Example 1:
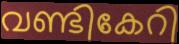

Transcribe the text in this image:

വണ്ടികേറി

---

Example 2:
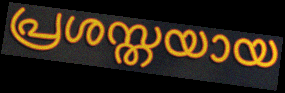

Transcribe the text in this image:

പ്രശസ്തയായ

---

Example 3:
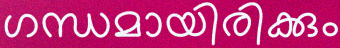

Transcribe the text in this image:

ഗന്ധമായിരിക്കും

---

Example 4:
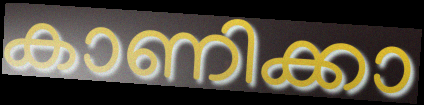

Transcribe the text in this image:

കാണിക്കാ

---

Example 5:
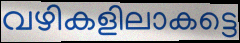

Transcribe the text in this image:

വഴികളിലാകട്ടെ